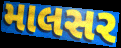
માલસર